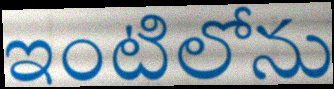
ఇంటిలోను